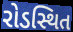
રોડસ્થિત